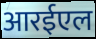
आरईएल